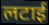
लटाई